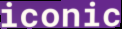
iconic